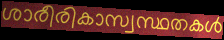
ശാരീരികാസ്വസ്ഥതകൾ